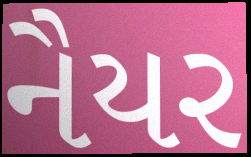
નૈયર